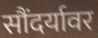
सौंदर्यावर